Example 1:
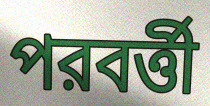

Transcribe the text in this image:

পরবর্ত্তী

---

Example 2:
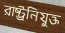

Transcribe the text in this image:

রাষ্ট্রনিযুক্ত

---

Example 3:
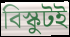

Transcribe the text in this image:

বিস্কুটই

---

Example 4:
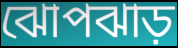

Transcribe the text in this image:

ঝোপঝাড়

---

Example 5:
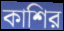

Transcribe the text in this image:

কাশির